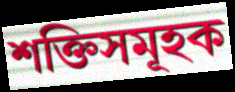
শক্তিসমূহক